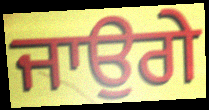
ਜਾਉਗੇ